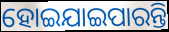
ହୋଇଯାଇପାରନ୍ତି